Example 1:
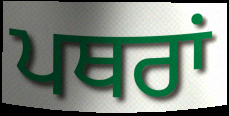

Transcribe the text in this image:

ਪਥਰਾਂ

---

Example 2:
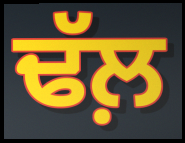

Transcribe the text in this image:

ਢੱਲ਼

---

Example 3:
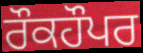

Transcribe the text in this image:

ਰੌਕਹੌਪਰ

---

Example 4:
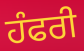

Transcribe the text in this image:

ਹੰਫਰੀ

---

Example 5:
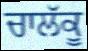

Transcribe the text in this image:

ਚਾਲੱਕੂ